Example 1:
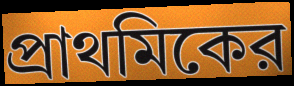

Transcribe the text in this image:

প্রাথমিকের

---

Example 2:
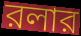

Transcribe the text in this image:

রলার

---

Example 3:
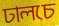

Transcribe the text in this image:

ঢালচে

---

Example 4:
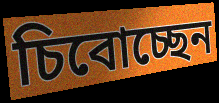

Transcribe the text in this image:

চিবোচ্ছেন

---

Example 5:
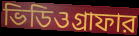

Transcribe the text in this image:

ভিডিওগ্রাফার